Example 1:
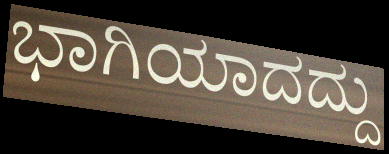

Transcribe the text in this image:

ಭಾಗಿಯಾದದ್ದು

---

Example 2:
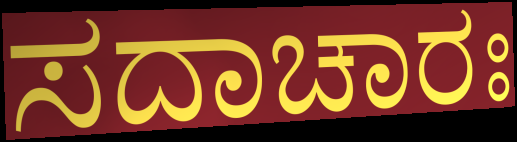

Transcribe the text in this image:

ಸದಾಚಾರಃ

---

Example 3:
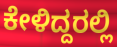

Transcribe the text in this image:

ಕೇಳಿದ್ದರಲ್ಲಿ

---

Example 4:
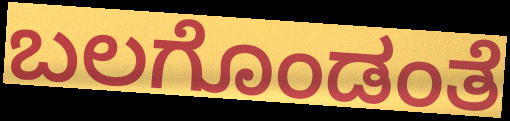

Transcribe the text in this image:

ಬಲಗೊಂಡಂತೆ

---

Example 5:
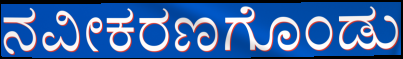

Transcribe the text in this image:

ನವೀಕರಣಗೊಂಡು